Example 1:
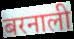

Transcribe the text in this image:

बरनाली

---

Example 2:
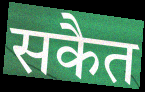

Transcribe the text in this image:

सकैत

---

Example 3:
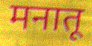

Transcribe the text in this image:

मनातू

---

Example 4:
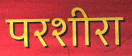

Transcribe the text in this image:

परशीरा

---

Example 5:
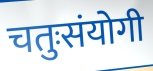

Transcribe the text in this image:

चतुःसंयोगी